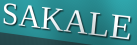
SAKALE